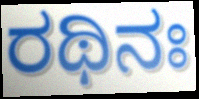
ರಥಿನಃ